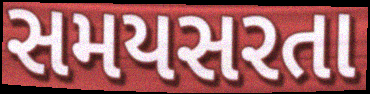
સમયસરતા